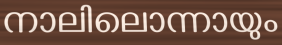
നാലിലൊന്നായും